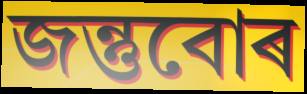
জন্তুবোৰ